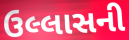
ઉલ્લાસની